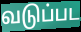
வடுப்பட